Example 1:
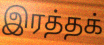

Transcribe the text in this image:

இரத்தக்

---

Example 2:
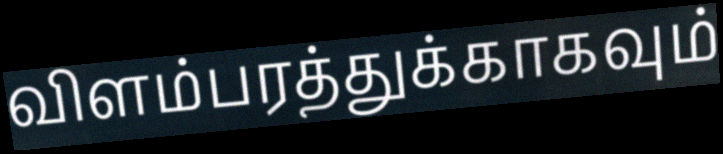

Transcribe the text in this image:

விளம்பரத்துக்காகவும்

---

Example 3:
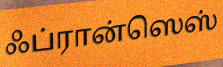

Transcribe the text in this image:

ஃப்ரான்ஸெஸ்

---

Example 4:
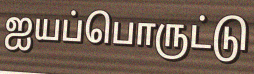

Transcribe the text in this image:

ஐயப்பொருட்டு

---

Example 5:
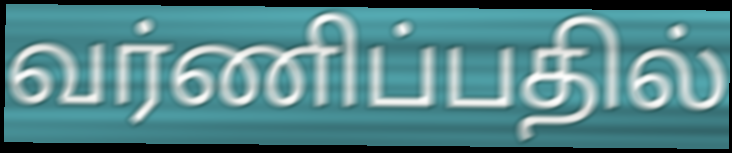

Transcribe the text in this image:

வர்ணிப்பதில்